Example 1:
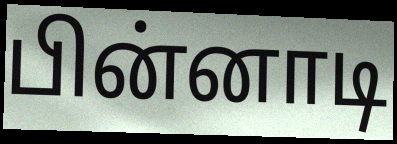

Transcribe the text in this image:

பின்னாடி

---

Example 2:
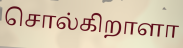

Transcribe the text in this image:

சொல்கிறாளா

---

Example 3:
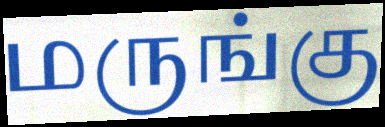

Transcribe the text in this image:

மருங்கு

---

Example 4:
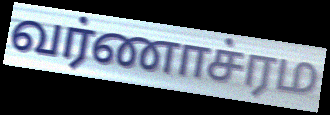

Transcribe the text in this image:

வர்ணாச்ரம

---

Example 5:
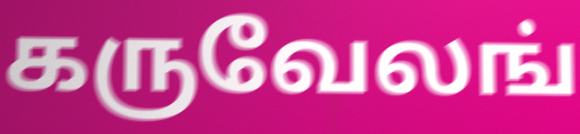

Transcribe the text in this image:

கருவேலங்